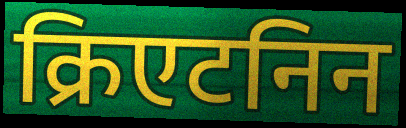
क्रिएटनिन